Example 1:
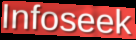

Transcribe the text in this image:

Infoseek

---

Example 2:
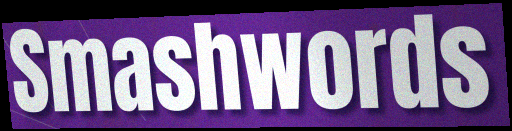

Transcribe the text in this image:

Smashwords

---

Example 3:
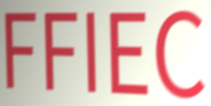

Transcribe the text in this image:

FFIEC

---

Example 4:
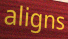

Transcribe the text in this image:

aligns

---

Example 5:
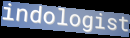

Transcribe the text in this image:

indologist